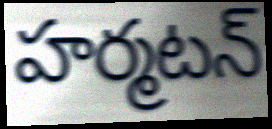
హర్మటన్